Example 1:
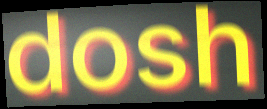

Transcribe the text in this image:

dosh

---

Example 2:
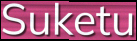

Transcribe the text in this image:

Suketu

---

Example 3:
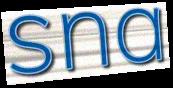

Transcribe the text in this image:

sna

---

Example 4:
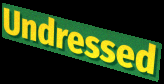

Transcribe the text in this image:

Undressed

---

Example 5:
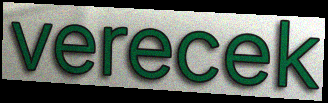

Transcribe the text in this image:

verecek